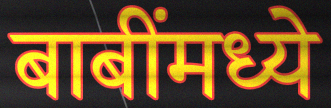
बाबींमध्ये